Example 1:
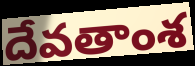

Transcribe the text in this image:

దేవతాంశ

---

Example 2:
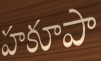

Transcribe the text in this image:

హకూపా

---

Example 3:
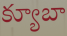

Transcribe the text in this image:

క్యూబా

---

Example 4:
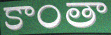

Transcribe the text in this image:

కాంతా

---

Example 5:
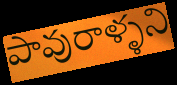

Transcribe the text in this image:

పావురాళ్ళని